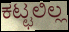
ಕಟ್ಟಲಿಲ್ಲ